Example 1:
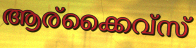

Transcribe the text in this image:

ആര്ക്കൈവ്സ്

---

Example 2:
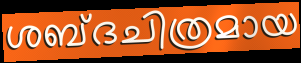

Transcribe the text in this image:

ശബ്ദചിത്രമായ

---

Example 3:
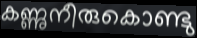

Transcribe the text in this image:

കണ്ണുനീരുകൊണ്ടു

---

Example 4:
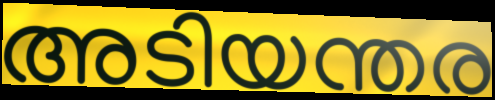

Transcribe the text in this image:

അടിയന്തര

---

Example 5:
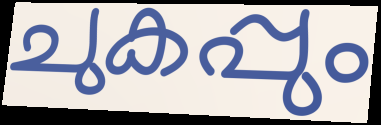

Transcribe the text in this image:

ചുകപ്പും